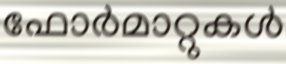
ഫോർമാറ്റുകൾ